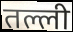
तल्ली